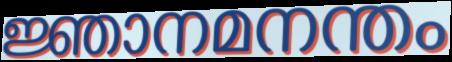
ജ്ഞാനമനന്തം